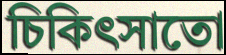
চিকিৎসাতো